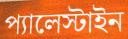
প্যালেস্টাইন